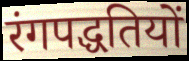
रंगपद्धतियों